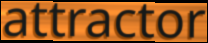
attractor